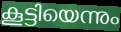
കൂട്ടിയെന്നും